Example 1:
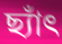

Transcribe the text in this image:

ছ্যাঁৎ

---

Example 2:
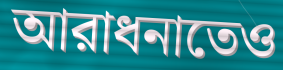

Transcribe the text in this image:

আরাধনাতেও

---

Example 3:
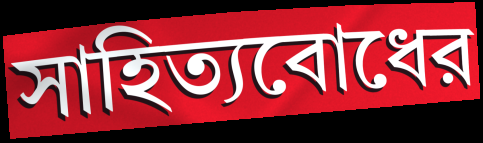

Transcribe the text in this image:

সাহিত্যবোধের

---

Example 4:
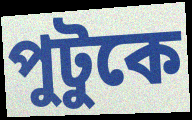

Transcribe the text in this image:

পুটুকে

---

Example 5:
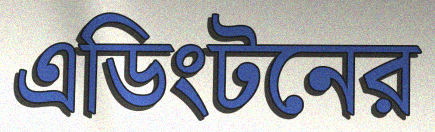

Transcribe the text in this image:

এডিংটনের